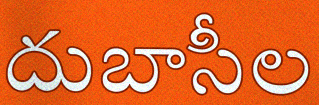
దుబాసీల